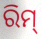
ରିମ୍